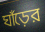
ঘাঁড়ের